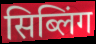
सिब्लिंग